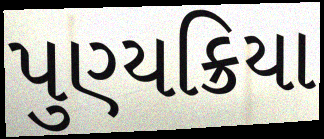
પુણ્યક્રિયા